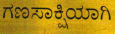
ಗಣಸಾಕ್ಷಿಯಾಗಿ